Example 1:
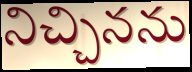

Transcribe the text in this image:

నిచ్చినను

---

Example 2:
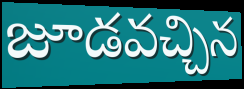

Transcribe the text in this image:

జూడవచ్చిన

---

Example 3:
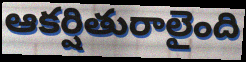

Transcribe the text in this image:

ఆకర్షితురాలైంది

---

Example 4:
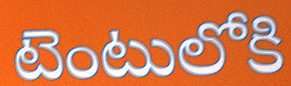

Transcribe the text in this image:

టెంటులోకి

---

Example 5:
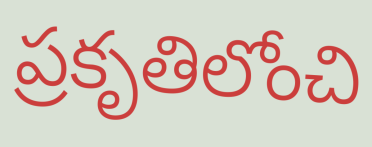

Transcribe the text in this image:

ప్రకృతిలోంచి